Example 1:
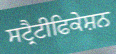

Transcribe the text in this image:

ਸਟ੍ਰੈਟੀਫਿਕੇਸ਼ਨ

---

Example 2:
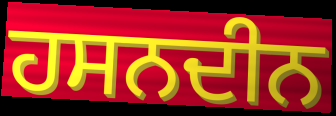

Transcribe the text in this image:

ਹਸਨਦੀਨ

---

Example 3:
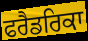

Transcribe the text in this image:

ਫਰੈਡਰਿਕਾ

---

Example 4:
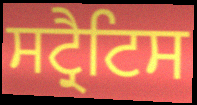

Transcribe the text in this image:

ਸਟ੍ਰੈਟਿਸ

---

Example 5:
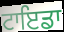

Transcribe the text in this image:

ਟਾਇਡਾ